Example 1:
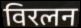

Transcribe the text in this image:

विरलन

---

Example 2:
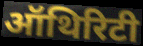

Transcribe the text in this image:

ऑथिरिटी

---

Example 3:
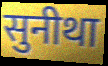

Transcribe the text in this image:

सुनीथा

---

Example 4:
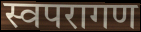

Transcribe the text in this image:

स्वपरागण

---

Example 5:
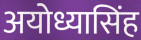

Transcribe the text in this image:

अयोध्यासिंह